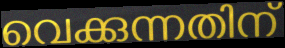
വെക്കുന്നതിന്